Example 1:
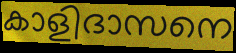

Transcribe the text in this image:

കാളിദാസനെ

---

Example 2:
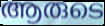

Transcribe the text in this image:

ആരുടെ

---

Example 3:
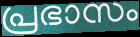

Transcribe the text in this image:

പ്രഭാസം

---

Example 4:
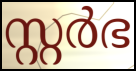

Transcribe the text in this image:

സ്റ്റർഭ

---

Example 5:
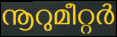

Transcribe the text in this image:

നൂറുമീറ്റർ